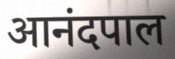
आनंदपाल